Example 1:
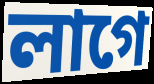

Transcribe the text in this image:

লাগে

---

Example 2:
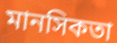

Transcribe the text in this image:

মানসিকতা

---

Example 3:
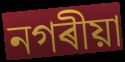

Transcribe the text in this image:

নগৰীয়া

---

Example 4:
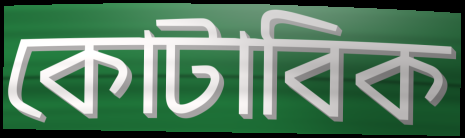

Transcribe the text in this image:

কোটাবিক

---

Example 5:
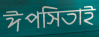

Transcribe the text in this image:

ঈপসিতাই